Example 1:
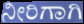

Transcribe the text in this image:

ನೀರಿಗಾಗಿ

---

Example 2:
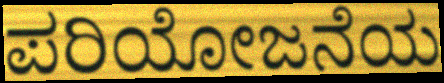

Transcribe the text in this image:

ಪರಿಯೋಜನೆಯ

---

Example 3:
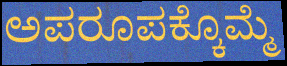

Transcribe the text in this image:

ಅಪರೂಪಕ್ಕೊಮ್ಮೆ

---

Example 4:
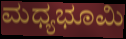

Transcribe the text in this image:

ಮಧ್ಯಭೂಮಿ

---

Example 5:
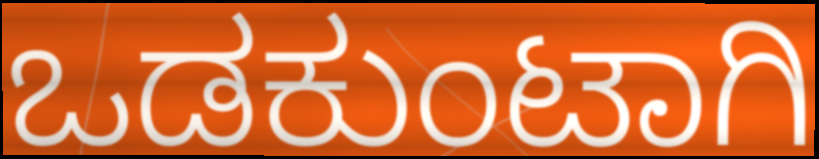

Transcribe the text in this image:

ಒಡಕುಂಟಾಗಿ